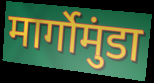
मार्गोमुंडा